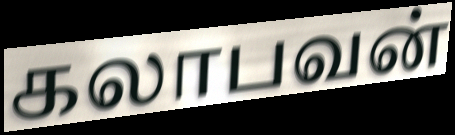
கலாபவன்